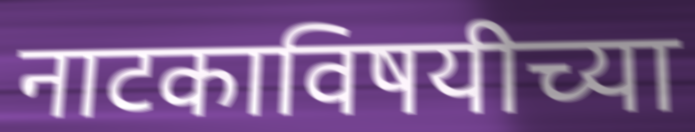
नाटकाविषयीच्या